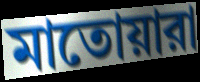
মাতোয়ারা